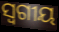
ସ୍ୱଗୀୟ